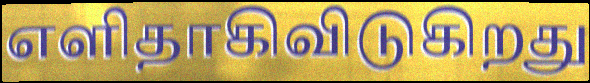
எளிதாகிவிடுகிறது